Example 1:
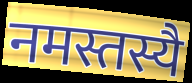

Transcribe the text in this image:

नमस्तस्यै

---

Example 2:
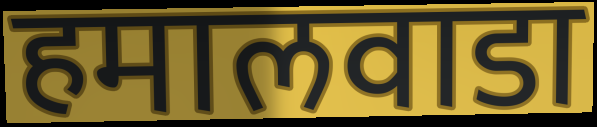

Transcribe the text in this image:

हमालवाडा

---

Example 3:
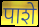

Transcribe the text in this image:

पाशे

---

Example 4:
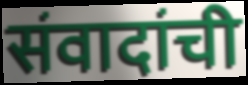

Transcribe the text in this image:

संवादांची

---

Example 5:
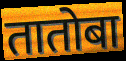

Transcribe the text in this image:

तातोबा